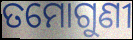
ତମୋଗୁଣୀ